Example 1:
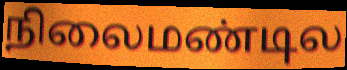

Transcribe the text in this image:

நிலைமண்டில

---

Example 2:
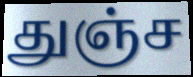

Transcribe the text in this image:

துஞ்ச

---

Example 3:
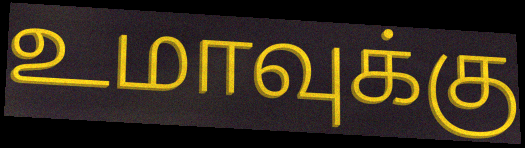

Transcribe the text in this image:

உமாவுக்கு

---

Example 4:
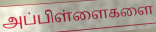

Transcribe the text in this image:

அப்பிள்ளைகளை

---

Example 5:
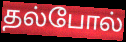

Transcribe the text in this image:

தல்போல்